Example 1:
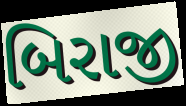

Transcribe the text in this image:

બિરાજી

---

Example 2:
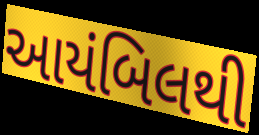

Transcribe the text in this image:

આયંબિલથી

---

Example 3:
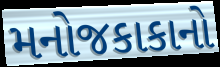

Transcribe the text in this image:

મનોજકાકાનો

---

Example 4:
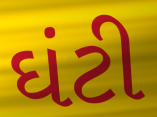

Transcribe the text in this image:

ઘંટી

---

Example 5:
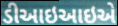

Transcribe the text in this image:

ડીઆઇઆઇએ